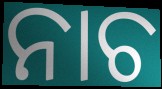
ନାଚ